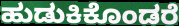
ಹುಡುಕಿಕೊಂಡರೆ